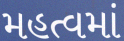
મહત્વમાં